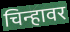
चिन्हावर